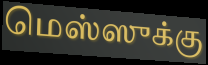
மெஸ்ஸுக்கு